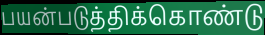
பயன்படுத்திக்கொண்டு